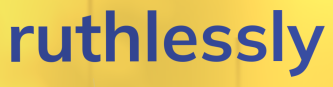
ruthlessly